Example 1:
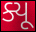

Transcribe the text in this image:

ક્યૂ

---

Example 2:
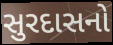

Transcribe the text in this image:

સુરદાસનો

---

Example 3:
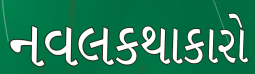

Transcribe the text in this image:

નવલકથાકારો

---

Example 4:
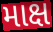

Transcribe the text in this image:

માક્ષ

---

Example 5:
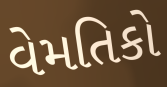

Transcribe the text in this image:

વેમતિકો